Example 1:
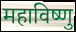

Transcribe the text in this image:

महाविष्णु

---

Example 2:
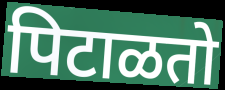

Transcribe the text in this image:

पिटाळतो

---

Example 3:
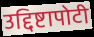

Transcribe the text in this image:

उद्दिष्टापोटी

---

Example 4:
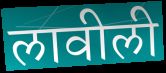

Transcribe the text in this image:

लावीली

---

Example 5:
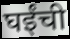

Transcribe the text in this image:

घईंची